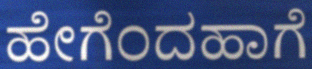
ಹೇಗೆಂದಹಾಗೆ